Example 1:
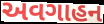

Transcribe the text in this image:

અવગાહન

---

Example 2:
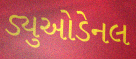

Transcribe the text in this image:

ડ્યુઓડેનલ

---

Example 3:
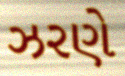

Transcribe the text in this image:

ઝરણે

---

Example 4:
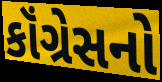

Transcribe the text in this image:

કૉંગ્રેસનો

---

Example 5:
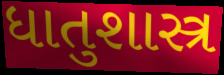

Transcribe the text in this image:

ધાતુશાસ્ત્ર